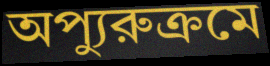
অপ্যুরুক্রমে